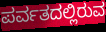
ಪರ್ವತದಲ್ಲಿರುವ